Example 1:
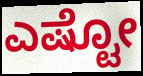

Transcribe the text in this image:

ಎಷ್ಟೋ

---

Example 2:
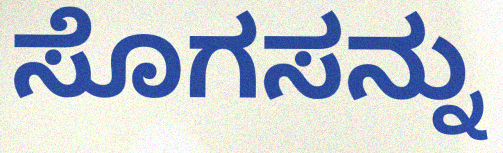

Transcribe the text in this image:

ಸೊಗಸನ್ನು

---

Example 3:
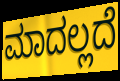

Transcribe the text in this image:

ಮಾದಲ್ಲದೆ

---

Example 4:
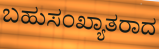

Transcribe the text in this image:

ಬಹುಸಂಖ್ಯಾತರಾದ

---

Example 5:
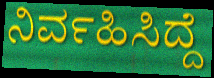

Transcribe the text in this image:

ನಿರ್ವಹಿಸಿದ್ದೆ